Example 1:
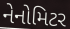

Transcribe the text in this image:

નેનોમિટર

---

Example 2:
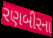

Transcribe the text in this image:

રણબીરના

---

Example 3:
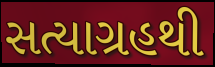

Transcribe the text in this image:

સત્યાગ્રહથી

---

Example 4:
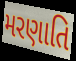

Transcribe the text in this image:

મરણાતિ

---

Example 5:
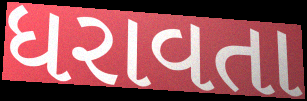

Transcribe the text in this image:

ધરાવતા